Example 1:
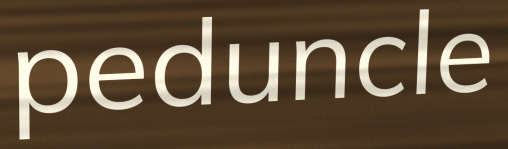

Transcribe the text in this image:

peduncle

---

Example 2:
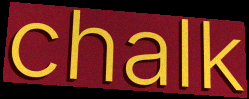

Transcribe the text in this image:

chalk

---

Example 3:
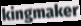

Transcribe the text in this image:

kingmaker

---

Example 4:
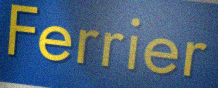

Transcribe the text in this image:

Ferrier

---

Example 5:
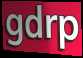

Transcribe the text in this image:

gdrp